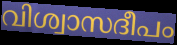
വിശ്വാസദീപം